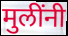
मुलींनी